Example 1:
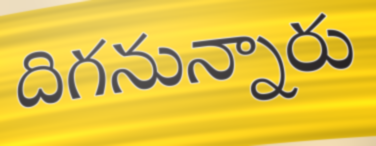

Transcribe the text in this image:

దిగనున్నారు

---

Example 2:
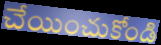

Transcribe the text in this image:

చేయించుకోండి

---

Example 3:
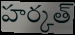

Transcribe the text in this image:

హర్కత్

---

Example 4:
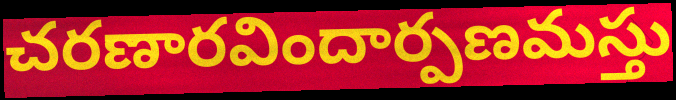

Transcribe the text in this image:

చరణారవిందార్పణమస్తు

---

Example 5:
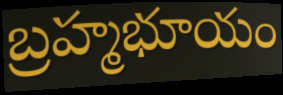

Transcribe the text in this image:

బ్రహ్మభూయం